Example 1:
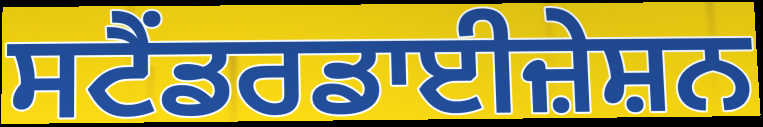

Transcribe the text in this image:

ਸਟੈਂਡਰਡਾਈਜ਼ੇਸ਼ਨ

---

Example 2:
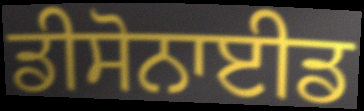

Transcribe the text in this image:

ਡੀਸੋਨਾਈਡ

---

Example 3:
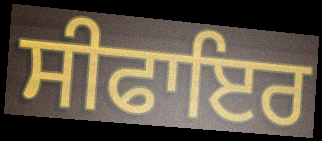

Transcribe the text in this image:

ਸੀਫਾਇਰ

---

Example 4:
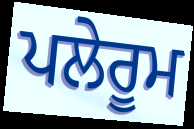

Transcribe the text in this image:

ਪਲੇਰੂਮ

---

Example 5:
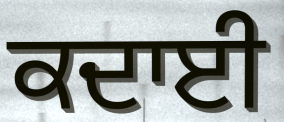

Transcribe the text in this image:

ਕਦਾਈ